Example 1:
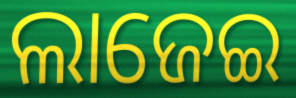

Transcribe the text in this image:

ଲାଜେଇ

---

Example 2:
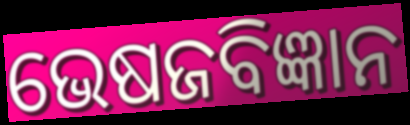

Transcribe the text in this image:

ଭେଷଜବିଜ୍ଞାନ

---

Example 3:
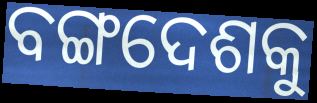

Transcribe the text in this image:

ବଙ୍ଗଦେଶକୁ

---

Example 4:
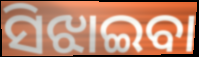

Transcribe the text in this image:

ସିଝାଇବା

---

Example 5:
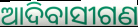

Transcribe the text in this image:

ଆଦିବାସୀଗଣ